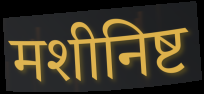
मशीनिष्ट